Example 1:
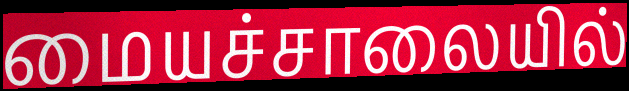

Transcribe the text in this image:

மையச்சாலையில்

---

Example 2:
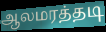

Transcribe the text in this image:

ஆலமரத்தடி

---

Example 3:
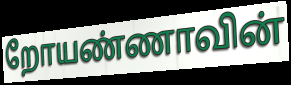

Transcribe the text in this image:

றோயண்ணாவின்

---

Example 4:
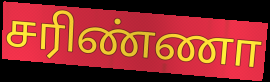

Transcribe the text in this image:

சரிண்ணா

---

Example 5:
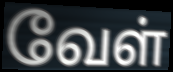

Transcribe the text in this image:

வேள்